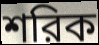
শরিক